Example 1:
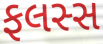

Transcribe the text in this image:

ફલસ્સ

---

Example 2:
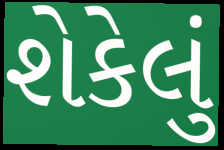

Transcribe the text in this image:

શેકેલું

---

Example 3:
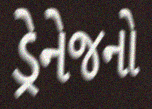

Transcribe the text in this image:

ડ્રેનેજનો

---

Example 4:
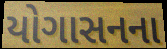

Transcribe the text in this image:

યોગાસનના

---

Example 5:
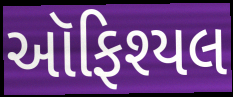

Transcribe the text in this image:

ઑફિશ્યલ